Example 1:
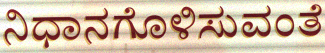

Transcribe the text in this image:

ನಿಧಾನಗೊಳಿಸುವಂತೆ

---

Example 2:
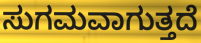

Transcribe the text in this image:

ಸುಗಮವಾಗುತ್ತದೆ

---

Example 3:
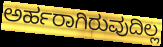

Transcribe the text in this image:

ಅರ್ಹರಾಗಿರುವುದಿಲ್ಲ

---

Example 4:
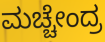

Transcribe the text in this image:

ಮಚ್ಚೇಂದ್ರ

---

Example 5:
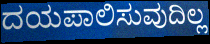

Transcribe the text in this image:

ದಯಪಾಲಿಸುವುದಿಲ್ಲ